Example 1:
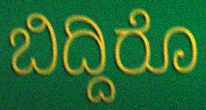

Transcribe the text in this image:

ಬಿದ್ದಿರೊ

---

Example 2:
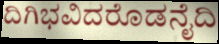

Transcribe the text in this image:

ದಿಗಿಭವಿದರೊಡನೈದಿ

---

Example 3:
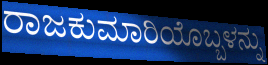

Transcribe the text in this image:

ರಾಜಕುಮಾರಿಯೊಬ್ಬಳನ್ನು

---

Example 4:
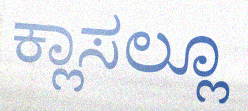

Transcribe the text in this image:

ಕ್ಲಾಸಲ್ಲೂ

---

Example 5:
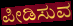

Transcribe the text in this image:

ಪೀಡಿಸುವ